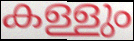
കള്ളും